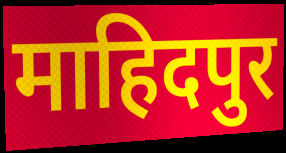
माहिदपुर